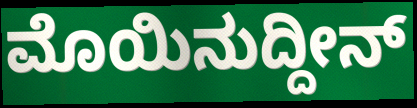
ಮೊಯಿನುದ್ದೀನ್